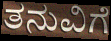
ತನುವಿಗೆ